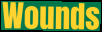
Wounds